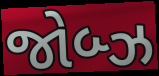
જોબ્ઝ